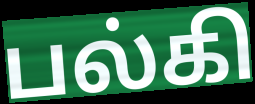
பல்கி